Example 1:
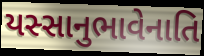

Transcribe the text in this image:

યસ્સાનુભાવેનાતિ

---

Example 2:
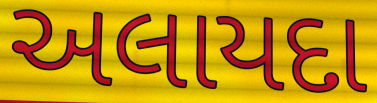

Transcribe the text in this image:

અલાયદા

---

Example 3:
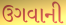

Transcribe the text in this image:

ઉગવાની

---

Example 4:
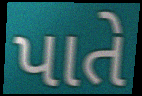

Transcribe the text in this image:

પાતે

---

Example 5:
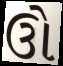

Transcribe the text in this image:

ઉો